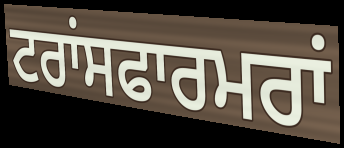
ਟਰਾਂਸਫਾਰਮਰਾਂ